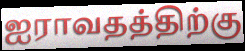
ஐராவதத்திற்கு